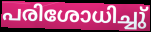
പരിശോധിച്ചു്